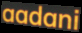
aadani